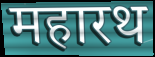
महारथ